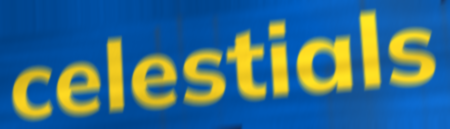
celestials